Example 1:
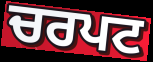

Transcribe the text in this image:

ਚਰਪਟ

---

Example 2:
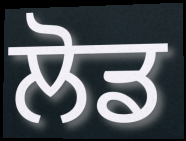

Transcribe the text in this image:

ਲੋਡ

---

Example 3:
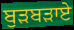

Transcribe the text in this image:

ਬੁੜਬੜਾਏ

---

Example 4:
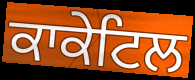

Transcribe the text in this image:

ਕਾਕੇਟਿਲ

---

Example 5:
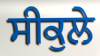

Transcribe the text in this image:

ਸੀਕੁਲੇ